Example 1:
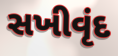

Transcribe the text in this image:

સખીવૃંદ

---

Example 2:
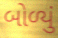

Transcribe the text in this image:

બોળ્યું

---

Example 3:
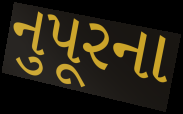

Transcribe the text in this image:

નુપૂરના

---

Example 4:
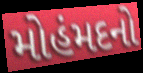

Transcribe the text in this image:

મોહંમદનો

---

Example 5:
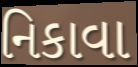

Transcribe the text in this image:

નિકાવા